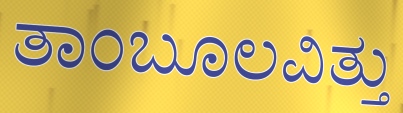
ತಾಂಬೂಲವಿತ್ತು